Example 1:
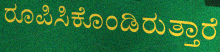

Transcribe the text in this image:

ರೂಪಿಸಿಕೊಂಡಿರುತ್ತಾರೆ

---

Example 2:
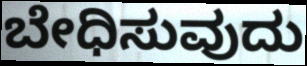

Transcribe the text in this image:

ಬೇಧಿಸುವುದು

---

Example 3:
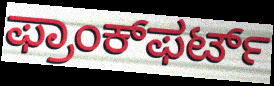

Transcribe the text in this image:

ಫ್ರಾಂಕ್‌ಫರ್ಟ್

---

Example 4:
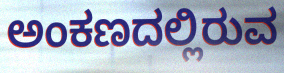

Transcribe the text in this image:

ಅಂಕಣದಲ್ಲಿರುವ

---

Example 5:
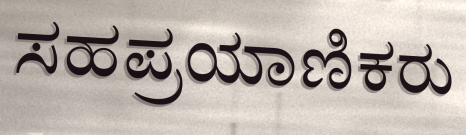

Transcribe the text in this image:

ಸಹಪ್ರಯಾಣಿಕರು